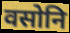
वसोनि